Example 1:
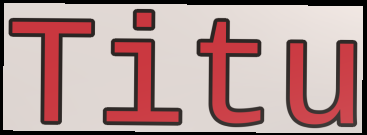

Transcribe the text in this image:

Titu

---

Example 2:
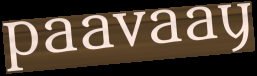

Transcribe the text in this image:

paavaay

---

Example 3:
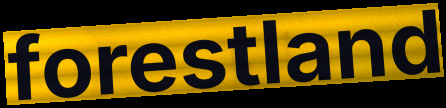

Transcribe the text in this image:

forestland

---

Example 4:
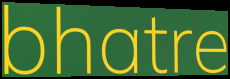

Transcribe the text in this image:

bhatre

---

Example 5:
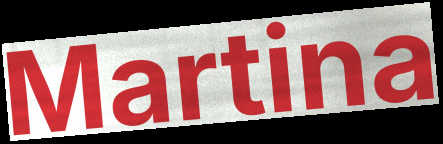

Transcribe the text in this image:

Martina